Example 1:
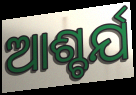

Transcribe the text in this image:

ଆଶ୍ଚର୍ଯ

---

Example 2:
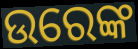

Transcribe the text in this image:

ଉରେଙ୍କ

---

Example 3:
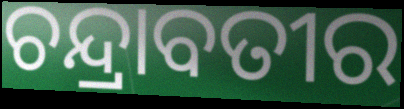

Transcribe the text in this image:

ଚନ୍ଦ୍ରାବତୀର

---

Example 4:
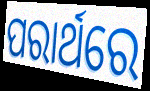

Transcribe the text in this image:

ପରାର୍ଥରେ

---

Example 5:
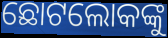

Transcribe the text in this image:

ଛୋଟଲୋକଙ୍କୁ